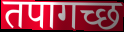
तपागच्छ